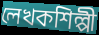
লেখকশিল্পী